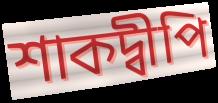
শাকদ্বীপি